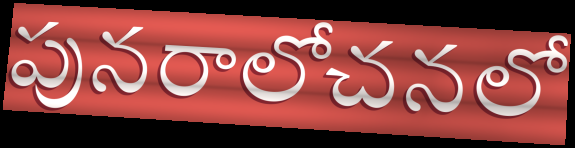
పునరాలోచనలో